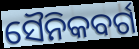
ସୈନିକବର୍ଗ